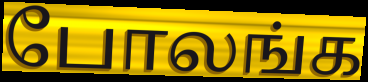
போலங்க